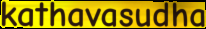
kathavasudha